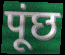
पूंछ